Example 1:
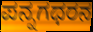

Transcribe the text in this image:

ಪನ್ನಗಧರನ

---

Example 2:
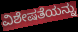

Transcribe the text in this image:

ವಿಶೇಷತೆಯನ್ನು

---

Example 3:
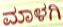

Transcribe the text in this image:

ಮಾಳಗಿ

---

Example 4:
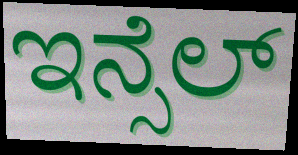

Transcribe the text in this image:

ಇನ್ಸೆಲ್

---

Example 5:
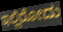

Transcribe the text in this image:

ಇಲ್ಲಿರೋದು